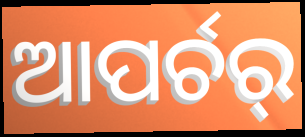
ଆପର୍ଚର୍